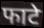
फाटे